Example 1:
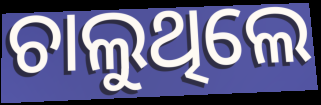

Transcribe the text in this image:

ଚାଲୁଥିଲେ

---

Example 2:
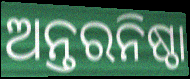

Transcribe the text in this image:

ଅନ୍ତରନିଷ୍ଠା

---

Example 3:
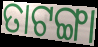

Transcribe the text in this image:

ତାଟଙ୍ଗା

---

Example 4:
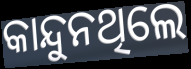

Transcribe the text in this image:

କାନ୍ଦୁନଥିଲେ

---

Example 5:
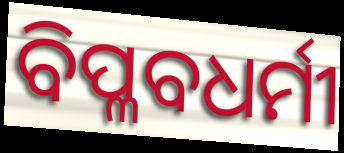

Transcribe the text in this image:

ବିପ୍ଳବଧର୍ମୀ